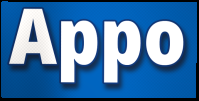
Appo